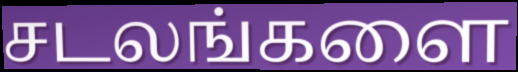
சடலங்களை